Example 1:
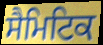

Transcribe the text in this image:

ਸੈਮਿਟਿਕ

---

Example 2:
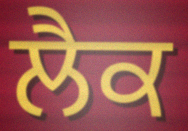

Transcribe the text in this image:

ਲੈਕ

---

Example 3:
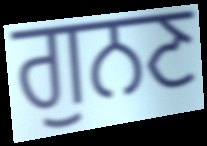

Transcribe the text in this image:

ਗੁਨਣ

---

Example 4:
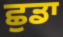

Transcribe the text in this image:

ਛੁਡਾ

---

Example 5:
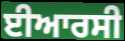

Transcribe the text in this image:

ਈਆਰਸੀ